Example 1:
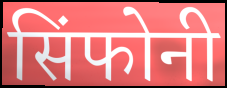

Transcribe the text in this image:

सिंफोनी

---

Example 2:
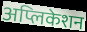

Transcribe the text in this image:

अप्लिकेशन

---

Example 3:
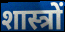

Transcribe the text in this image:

शास्त्रों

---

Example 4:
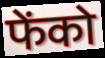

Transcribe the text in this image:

फेंको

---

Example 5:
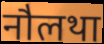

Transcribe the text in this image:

नौलथा